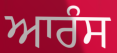
ਆਰੰਸ